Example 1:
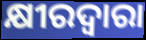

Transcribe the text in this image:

କ୍ଷୀରଦ୍ଵାରା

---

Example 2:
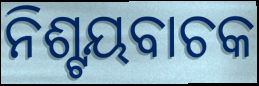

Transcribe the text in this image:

ନିଶ୍ଟୟବାଚକ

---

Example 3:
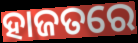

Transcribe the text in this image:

ହାଜତରେ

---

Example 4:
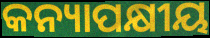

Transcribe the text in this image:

କନ୍ୟାପକ୍ଷୀୟ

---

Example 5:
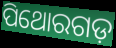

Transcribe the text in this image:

ପିଥୋରଗଡ଼